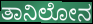
ತಾನಿಲೋನ